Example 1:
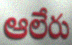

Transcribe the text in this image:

ఆలేరు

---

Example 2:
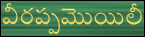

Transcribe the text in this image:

వీరప్పమొయిలీ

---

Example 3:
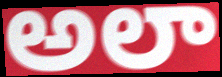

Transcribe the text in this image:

అలా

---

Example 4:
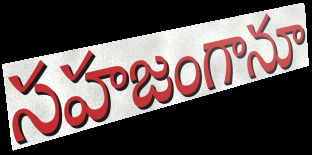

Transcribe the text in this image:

సహజంగానూ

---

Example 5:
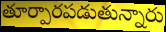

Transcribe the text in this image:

తూర్పారపడుతున్నారు